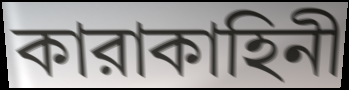
কারাকাহিনী